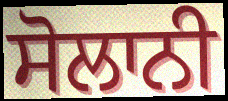
ਸੋਲਾਨੀ